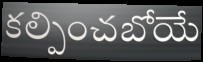
కల్పించబోయే